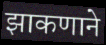
झाकणाने